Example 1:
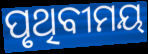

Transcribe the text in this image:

ପୃଥିବୀମୟ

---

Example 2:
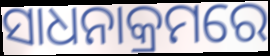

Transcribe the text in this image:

ସାଧନାକ୍ରମରେ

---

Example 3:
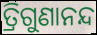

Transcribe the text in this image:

ତ୍ରିଗୁଣାନନ୍ଦ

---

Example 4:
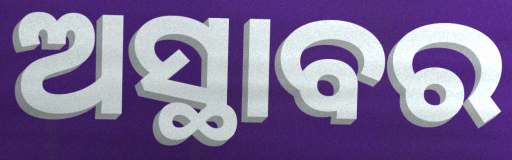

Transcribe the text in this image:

ଅସ୍ଥାବର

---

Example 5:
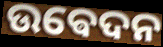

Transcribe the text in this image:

ଉଵେଦନ